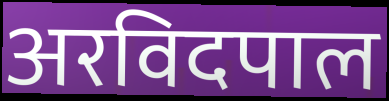
अरविदपाल